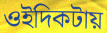
ওইদিকটায়